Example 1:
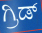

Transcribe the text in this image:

ಗ್ರಿಡ್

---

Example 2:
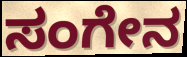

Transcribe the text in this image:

ಸಂಗೇನ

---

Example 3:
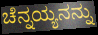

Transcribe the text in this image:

ಚೆನ್ನಯ್ಯನನ್ನು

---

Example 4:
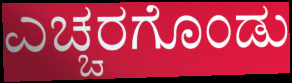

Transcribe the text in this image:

ಎಚ್ಚರಗೊಂಡು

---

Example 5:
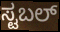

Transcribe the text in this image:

ಸ್ಟಬಲ್